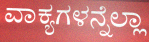
ವಾಕ್ಯಗಳನ್ನೆಲ್ಲಾ